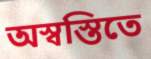
অস্বস্তিতে